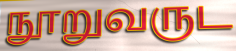
நூறுவருட